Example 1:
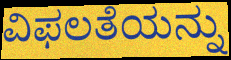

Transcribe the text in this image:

ವಿಫಲತೆಯನ್ನು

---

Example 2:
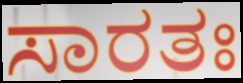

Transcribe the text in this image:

ಸಾರತಃ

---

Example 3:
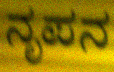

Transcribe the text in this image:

ನೃಪನ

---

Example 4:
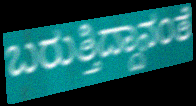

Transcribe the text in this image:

ಬರುತ್ತಿದ್ದಾನಂತೆ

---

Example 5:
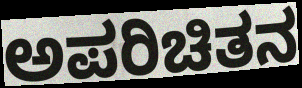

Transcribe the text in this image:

ಅಪರಿಚಿತನ